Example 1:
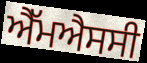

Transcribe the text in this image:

ਐੱਮਐਸਸੀ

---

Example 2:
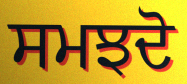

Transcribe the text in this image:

ਸਮਝਦੋ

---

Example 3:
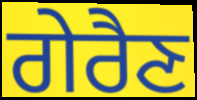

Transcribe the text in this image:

ਗੇਰੈਣ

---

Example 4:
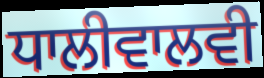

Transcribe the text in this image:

ਧਾਲੀਵਾਲਵੀ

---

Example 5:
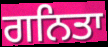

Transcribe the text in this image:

ਗਨਿਤਾ